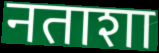
नताशा